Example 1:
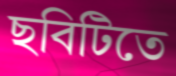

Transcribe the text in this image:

ছবিটিতে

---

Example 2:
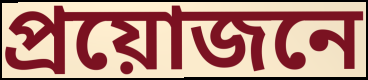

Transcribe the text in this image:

প্রয়োজনে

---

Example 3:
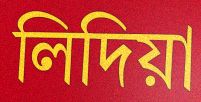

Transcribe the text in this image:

লিদিয়া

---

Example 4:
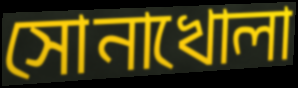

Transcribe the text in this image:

সোনাখোলা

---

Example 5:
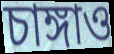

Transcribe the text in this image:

চাঙ্গাও